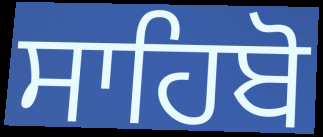
ਸਾਹਿਬੋ